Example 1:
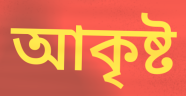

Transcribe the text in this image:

আকৃষ্ট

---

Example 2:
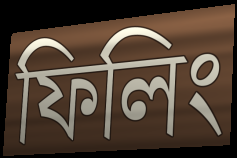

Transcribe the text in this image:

ফিলিং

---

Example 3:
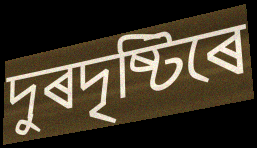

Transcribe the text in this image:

দুৰদৃষ্টিৰে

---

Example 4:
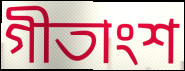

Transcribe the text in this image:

গীতাংশ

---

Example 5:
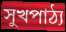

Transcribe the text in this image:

সুখপাঠ্য